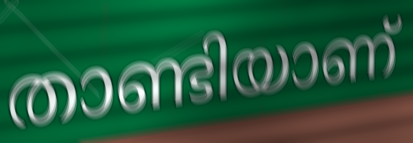
താണ്ടിയാണ്